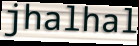
jhalhal